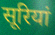
सूरियां